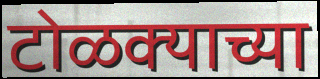
टोळक्याच्या